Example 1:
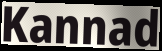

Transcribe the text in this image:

Kannad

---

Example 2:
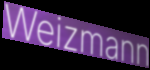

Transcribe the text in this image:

Weizmann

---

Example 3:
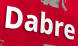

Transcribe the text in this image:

Dabre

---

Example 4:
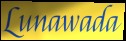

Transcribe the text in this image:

Lunawada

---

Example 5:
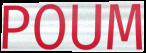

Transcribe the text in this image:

POUM